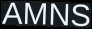
AMNS